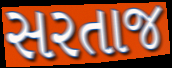
સરતાજ